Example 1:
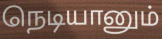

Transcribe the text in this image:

நெடியானும்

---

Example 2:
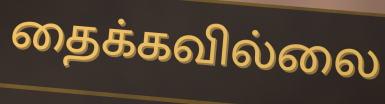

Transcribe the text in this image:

தைக்கவில்லை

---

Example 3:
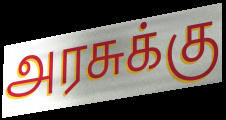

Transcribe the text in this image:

அரசுக்கு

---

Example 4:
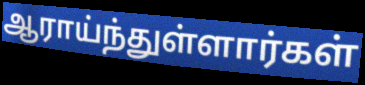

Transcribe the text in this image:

ஆராய்ந்துள்ளார்கள்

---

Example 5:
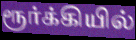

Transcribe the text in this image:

ரூர்க்கியில்